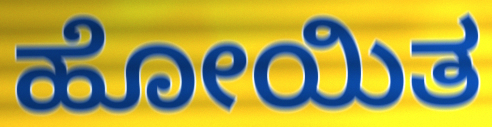
ಹೋಯಿತ